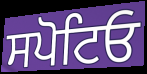
ਸਪੋਟਿਓ